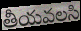
తీయవలసి